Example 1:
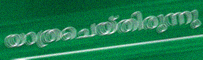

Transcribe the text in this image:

യാത്രചെയ്തിരുന്നു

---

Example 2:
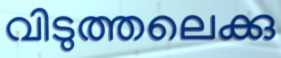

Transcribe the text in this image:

വിടുത്തലെക്കു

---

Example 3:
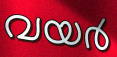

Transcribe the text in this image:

വയർ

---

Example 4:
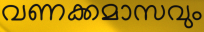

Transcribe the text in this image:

വണക്കമാസവും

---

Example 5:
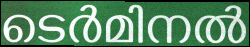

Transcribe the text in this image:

ടെർമിനൽ